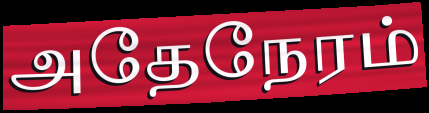
அதேநேரம்